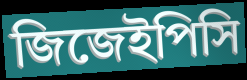
জিজেইপিসি